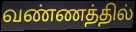
வண்ணத்தில்